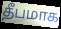
தீபமாக